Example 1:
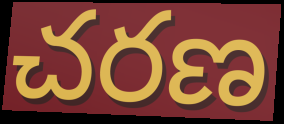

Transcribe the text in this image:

చరణ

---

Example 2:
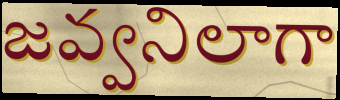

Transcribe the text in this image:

జవ్వనిలాగా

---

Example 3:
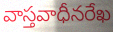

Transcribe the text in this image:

వాస్తవాధీనరేఖ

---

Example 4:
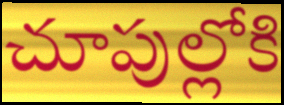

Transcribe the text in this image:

చూపుల్లోకి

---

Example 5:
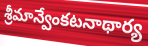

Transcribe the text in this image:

శ్రీమాన్వేంకటనాథార్య